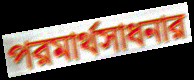
পরমার্থসাধনার